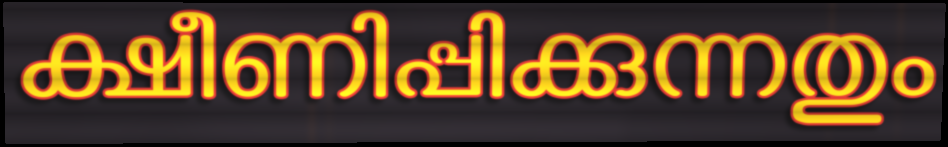
ക്ഷീണിപ്പിക്കുന്നതും